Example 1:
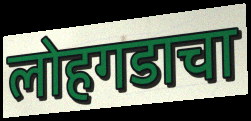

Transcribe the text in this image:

लोहगडाचा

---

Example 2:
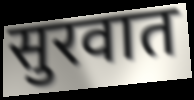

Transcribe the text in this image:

सुरवात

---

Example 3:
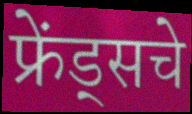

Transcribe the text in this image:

फ्रेंड्सचे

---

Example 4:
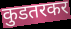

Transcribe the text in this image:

कुडतरकर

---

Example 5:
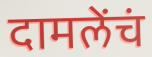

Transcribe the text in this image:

दामलेंचं